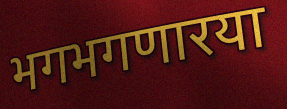
भगभगणारया